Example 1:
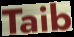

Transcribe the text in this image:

Taib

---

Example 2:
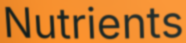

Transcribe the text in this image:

Nutrients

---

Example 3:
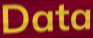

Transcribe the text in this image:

Data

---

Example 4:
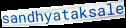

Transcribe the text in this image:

sandhyataksale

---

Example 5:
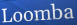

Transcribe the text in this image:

Loomba